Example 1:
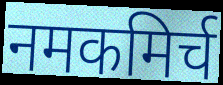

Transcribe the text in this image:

नमकमिर्च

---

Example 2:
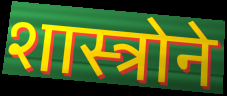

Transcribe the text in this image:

शास्त्रोने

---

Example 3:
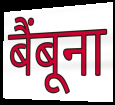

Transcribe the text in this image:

बैंबूना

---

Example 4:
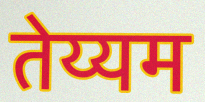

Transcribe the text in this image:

तेय्यम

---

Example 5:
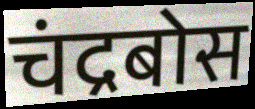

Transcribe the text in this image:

चंद्रबोस